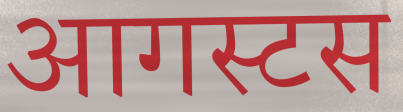
आगस्टस